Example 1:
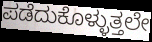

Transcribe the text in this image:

ಪಡೆದುಕೊಳ್ಳುತ್ತಲೇ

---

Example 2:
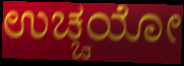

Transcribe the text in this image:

ಉಚ್ಚಯೋ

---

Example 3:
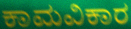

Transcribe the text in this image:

ಕಾಮವಿಕಾರ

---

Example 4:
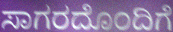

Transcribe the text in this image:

ಸಾಗರದೊಂದಿಗೆ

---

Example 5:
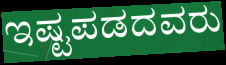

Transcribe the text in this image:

ಇಷ್ಟಪಡದವರು